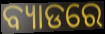
ବ୍ୟାଡରେ